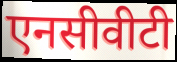
एनसीवीटी